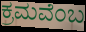
ಕ್ರಮವೆಂಬ